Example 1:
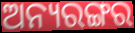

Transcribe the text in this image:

ଅନ୍ୟରଙ୍ଗର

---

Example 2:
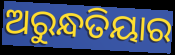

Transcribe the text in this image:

ଅରୁନ୍ଧତିୟାର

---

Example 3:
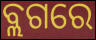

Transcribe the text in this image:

ବ୍ଲଗରେ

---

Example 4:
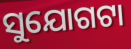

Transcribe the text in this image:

ସୁଯୋଗଟା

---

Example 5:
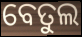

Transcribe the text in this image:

ବେତୁଲ